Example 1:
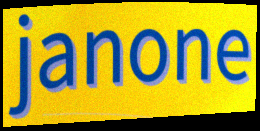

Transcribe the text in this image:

janone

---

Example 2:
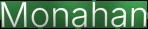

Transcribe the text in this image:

Monahan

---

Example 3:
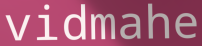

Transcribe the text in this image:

vidmahe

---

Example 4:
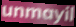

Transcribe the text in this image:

unmayil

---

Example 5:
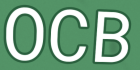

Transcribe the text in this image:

OCB